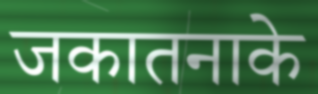
जकातनाके